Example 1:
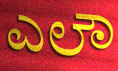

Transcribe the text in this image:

ಎಲೌ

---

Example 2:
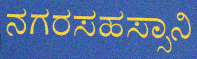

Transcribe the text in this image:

ನಗರಸಹಸ್ಸಾನಿ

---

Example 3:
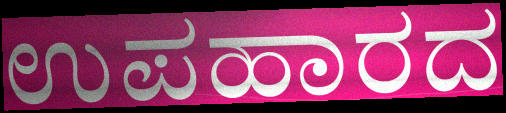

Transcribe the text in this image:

ಉಪಹಾರದ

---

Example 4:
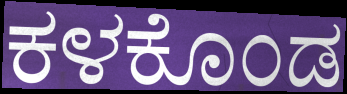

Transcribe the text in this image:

ಕಳಕೊಂಡ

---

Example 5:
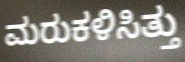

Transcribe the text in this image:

ಮರುಕಳಿಸಿತ್ತು